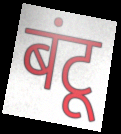
बंटू